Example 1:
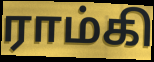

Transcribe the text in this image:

ராம்கி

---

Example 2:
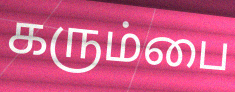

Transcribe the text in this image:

கரும்பை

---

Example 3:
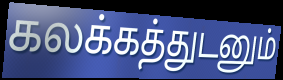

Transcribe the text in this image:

கலக்கத்துடனும்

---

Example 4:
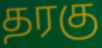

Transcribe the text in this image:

தரகு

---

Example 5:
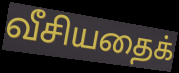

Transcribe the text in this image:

வீசியதைக்